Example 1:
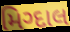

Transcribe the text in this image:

મિગ્દાલ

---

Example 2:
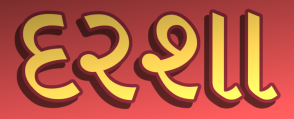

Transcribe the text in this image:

દરશા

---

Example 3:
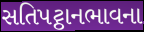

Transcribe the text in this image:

સતિપટ્ઠાનભાવના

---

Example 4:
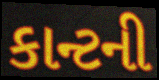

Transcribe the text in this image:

કાન્ટની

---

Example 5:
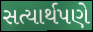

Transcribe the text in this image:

સત્યાર્થપણે